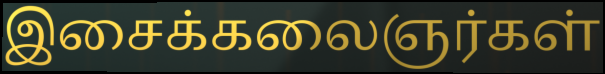
இசைக்கலைஞர்கள்